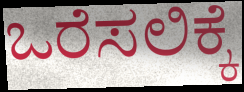
ಒರೆಸಲಿಕ್ಕೆ